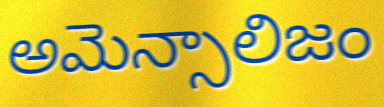
అమెన్సాలిజం